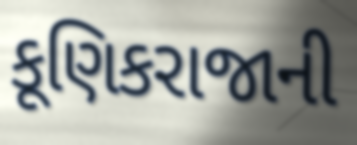
કૂણિકરાજાની